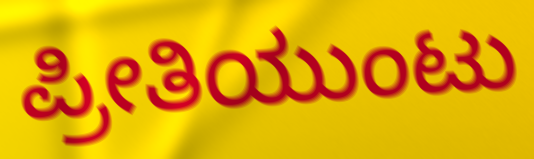
ಪ್ರೀತಿಯುಂಟು